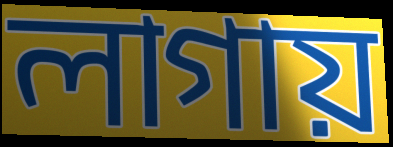
লাগায়